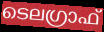
ടെലഗ്രാഫ്